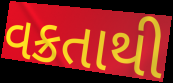
વક્રતાથી